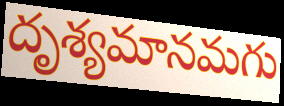
దృశ్యమానమగు